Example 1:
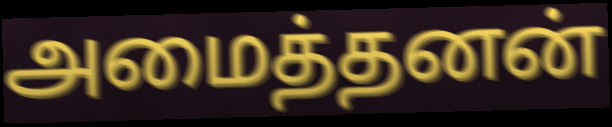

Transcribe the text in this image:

அமைத்தனன்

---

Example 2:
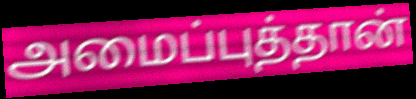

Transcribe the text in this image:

அமைப்புத்தான்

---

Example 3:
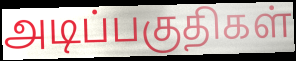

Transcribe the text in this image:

அடிப்பகுதிகள்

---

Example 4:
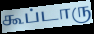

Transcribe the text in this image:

கூப்டாரு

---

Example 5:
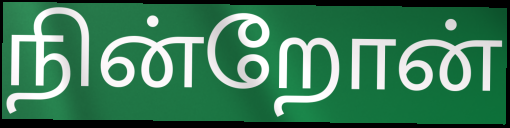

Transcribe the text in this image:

நின்றோன்